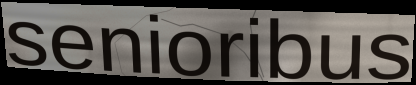
senioribus